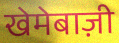
खेमेबाज़ी